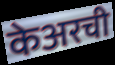
केअरची